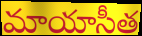
మాయాసీత